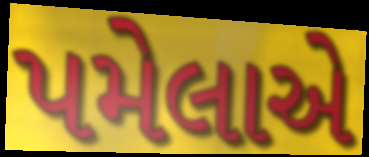
પમેલાએ